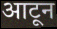
आटून